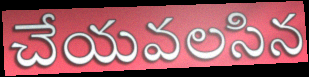
చేయవలసిన